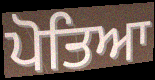
ਪੋਤਿਆ